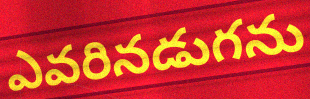
ఎవరినడుగను